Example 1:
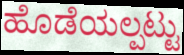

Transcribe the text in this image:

ಹೊಡೆಯಲ್ಪಟ್ಟು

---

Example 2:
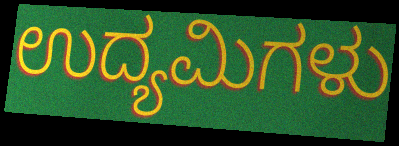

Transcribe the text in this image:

ಉದ್ಯಮಿಗಳು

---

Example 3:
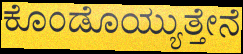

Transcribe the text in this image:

ಕೊಂಡೊಯ್ಯುತ್ತೇನೆ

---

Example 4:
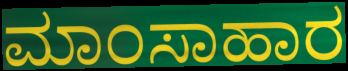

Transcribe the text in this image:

ಮಾಂಸಾಹಾರ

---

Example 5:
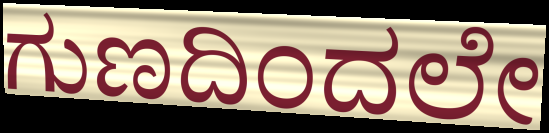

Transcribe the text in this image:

ಗುಣದಿಂದಲೇ